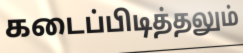
கடைப்பிடித்தலும்